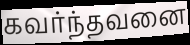
கவர்ந்தவனை